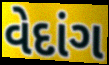
વેદાંગ